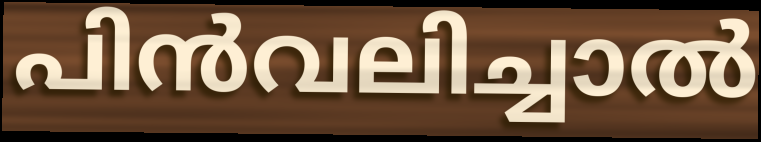
പിൻവലിച്ചാൽ